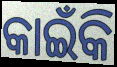
କାଇଁକି